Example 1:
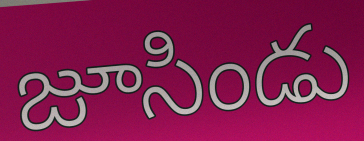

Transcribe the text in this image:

జూసిండు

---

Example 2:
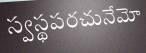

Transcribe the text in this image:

స్వస్థపరచునేమో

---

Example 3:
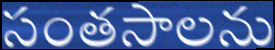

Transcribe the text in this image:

సంతసాలను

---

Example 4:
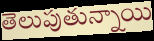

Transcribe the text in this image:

తెలుపుతున్నాయి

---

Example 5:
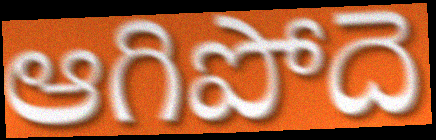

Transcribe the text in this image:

ఆగిపోదె